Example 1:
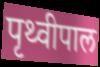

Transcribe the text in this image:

पृथ्वीपाल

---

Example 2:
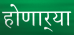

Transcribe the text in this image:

होणार्या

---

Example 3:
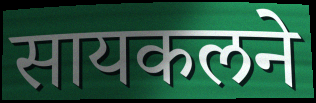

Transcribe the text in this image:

सायकलने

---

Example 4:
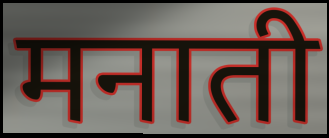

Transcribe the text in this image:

मनाती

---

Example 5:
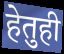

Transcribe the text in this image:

हेतुही